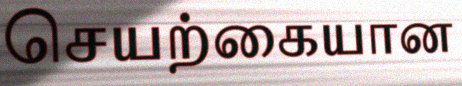
செயற்கையான